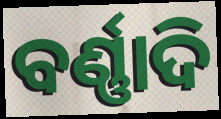
ବର୍ଣ୍ଣାଦି